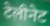
टेलीनेट